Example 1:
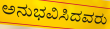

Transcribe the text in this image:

ಅನುಭವಿಸಿದವರು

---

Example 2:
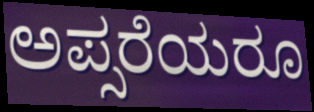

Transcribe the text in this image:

ಅಪ್ಸರೆಯರೂ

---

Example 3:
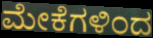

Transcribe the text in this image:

ಮೇಕೆಗಳಿಂದ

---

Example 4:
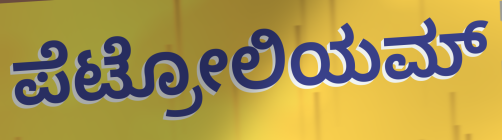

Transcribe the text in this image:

ಪೆಟ್ರೋಲಿಯಮ್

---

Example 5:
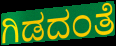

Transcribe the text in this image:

ಗಿಡದಂತೆ